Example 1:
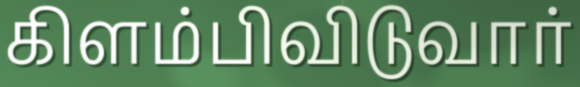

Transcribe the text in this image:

கிளம்பிவிடுவார்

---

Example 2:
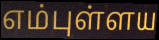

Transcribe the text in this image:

எம்புள்ளய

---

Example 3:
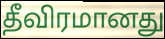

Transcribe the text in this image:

தீவிரமானது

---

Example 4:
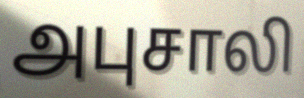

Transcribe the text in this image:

அபுசாலி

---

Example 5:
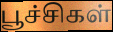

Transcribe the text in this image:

பூச்சிகள்